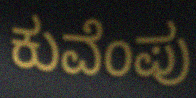
ಕುವೆಂಪು